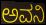
ಅವನಿ